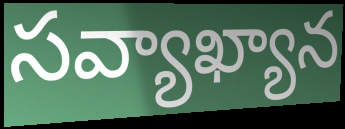
సవ్యాఖ్యాన